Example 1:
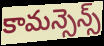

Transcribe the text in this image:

కామన్సెన్స్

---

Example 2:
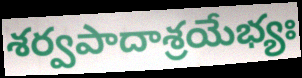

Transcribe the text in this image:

శర్వపాదాశ్రయేభ్యః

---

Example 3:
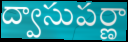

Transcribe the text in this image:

ద్వాసుపర్ణా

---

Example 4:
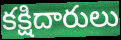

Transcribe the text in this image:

కక్షిదారులు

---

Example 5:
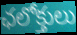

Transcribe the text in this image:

ఛలోక్తులు